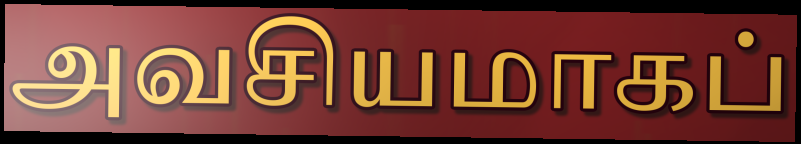
அவசியமாகப்